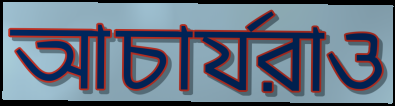
আচার্যরাও